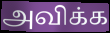
அவிக்க